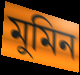
মুমিন